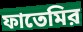
ফাতেমির